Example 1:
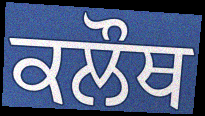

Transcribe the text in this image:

ਕਲੌਥ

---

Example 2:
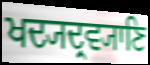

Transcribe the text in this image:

ਖਦ੍ਯਦ੍ਰਵ੍ਯਾਣਿ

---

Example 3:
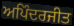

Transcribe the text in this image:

ਅਪਿੰਦਰਜੀਤ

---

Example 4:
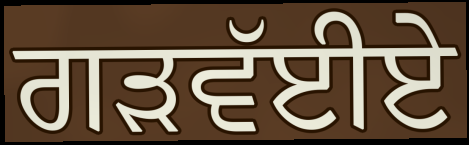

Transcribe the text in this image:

ਗੜਵੱਈਏ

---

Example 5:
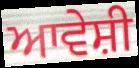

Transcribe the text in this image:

ਆਵੇਸ਼ੀ